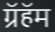
ग्रॅहॅम